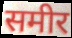
समीर